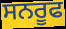
ਸਨਰੂਫ